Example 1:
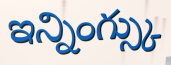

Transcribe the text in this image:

ఇన్నింగ్స్కు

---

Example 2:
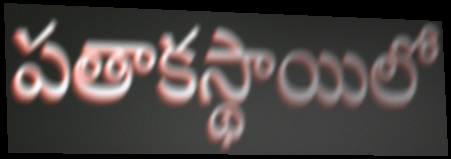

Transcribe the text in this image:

పతాకస్థాయిలో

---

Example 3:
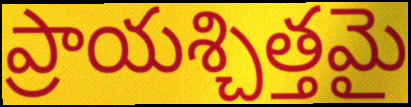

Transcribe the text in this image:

ప్రాయశ్చిత్తమై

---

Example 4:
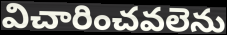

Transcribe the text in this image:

విచారించవలెను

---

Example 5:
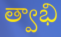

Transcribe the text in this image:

త్వాభి